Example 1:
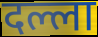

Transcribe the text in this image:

दल्ला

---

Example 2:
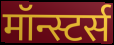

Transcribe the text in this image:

मॉन्स्टर्स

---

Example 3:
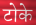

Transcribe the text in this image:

टोके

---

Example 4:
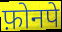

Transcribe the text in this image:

फ़ोनपे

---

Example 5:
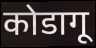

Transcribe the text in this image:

कोडागू